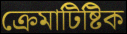
ক্রেমাটিষ্টিক